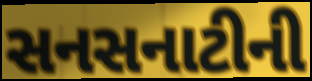
સનસનાટીની